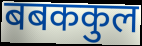
बबककुल